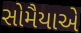
સોમૈયાએ